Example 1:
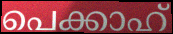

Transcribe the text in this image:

പെക്കാഹ്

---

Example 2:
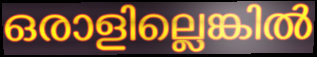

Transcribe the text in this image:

ഒരാളില്ലെങ്കിൽ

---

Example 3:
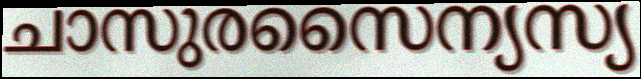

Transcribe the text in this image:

ചാസുരസൈന്യസ്യ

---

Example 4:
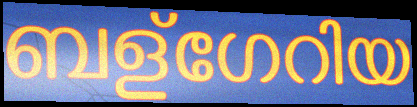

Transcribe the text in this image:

ബള്ഗേറിയ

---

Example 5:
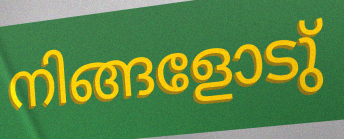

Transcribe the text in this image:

നിങ്ങളോടു്